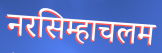
नरसिम्हाचलम